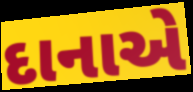
દાનાએ